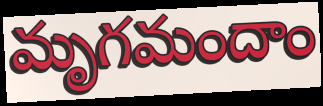
మృగమందాం